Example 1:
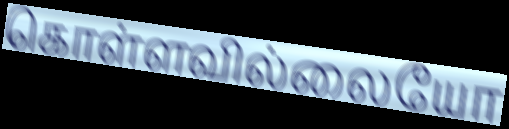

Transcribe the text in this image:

கொள்ளவில்லையோ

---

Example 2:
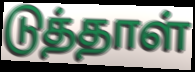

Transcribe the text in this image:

டுத்தாள்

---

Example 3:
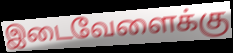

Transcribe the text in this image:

இடைவேளைக்கு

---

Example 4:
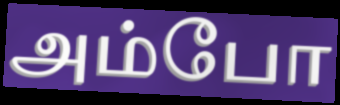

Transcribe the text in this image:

அம்போ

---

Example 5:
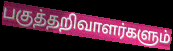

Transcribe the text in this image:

பகுத்தறிவாளர்களும்